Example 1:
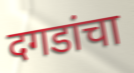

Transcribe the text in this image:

दगडांचा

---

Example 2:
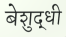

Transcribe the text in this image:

बेशुद्धी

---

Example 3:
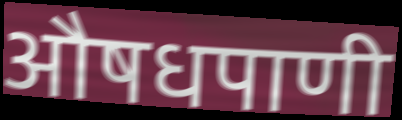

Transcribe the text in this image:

औषधपाणी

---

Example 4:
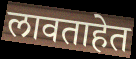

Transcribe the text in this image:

लावताहेत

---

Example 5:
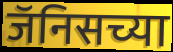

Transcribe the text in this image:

जॅनिसच्या